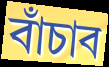
বাঁচাব